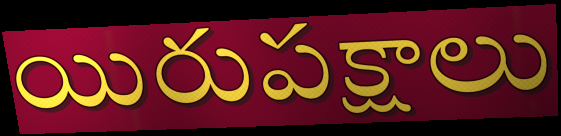
యిరుపక్షాలు